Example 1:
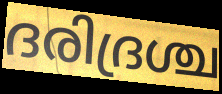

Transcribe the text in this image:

ദരിദ്രശ്ച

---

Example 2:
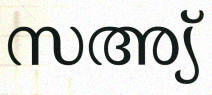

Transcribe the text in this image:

സഅ്യ്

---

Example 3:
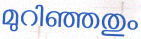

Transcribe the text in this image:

മുറിഞ്ഞതും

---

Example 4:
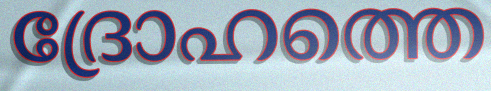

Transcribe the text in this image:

ദ്രോഹത്തെ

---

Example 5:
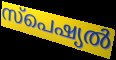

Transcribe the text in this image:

സ്‌പെഷ്യൽ